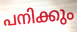
പനിക്കും